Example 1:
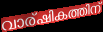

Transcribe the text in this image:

വാര്ഷികത്തിന്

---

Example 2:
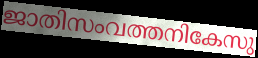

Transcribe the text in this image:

ജാതിസംവത്തനികേസു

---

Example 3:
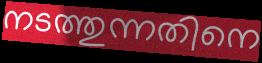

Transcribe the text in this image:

നടത്തുന്നതിനെ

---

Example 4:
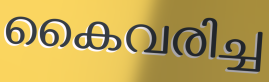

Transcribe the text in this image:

കൈവരിച്ച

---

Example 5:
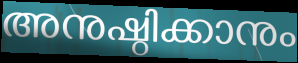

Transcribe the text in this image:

അനുഷ്ഠിക്കാനും